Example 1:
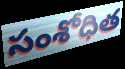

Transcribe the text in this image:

సంశోధిత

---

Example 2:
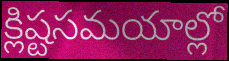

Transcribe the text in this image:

క్లిష్టసమయాల్లో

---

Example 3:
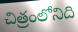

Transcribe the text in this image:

చిత్రంలోనిది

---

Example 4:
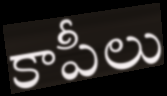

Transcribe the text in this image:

కాపీలు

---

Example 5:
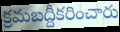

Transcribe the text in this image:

క్రమబద్దీకరించారు